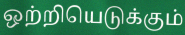
ஒற்றியெடுக்கும்